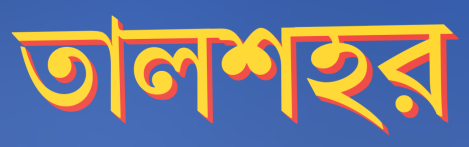
তালশহর